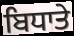
ਬਿਧਾਤੇ